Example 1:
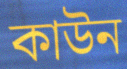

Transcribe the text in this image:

কাউন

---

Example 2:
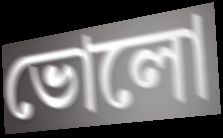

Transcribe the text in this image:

ভোলো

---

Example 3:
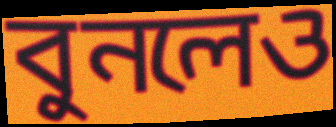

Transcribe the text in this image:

বুনলেও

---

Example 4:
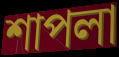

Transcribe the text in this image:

শাপলা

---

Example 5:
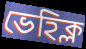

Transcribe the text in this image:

ভেহিক্ল